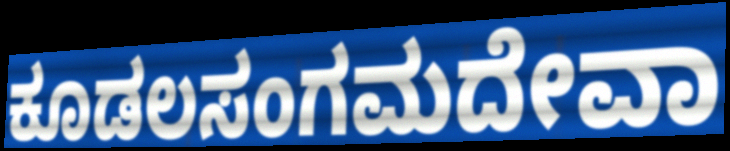
ಕೂಡಲಸಂಗಮದೇವಾ